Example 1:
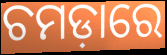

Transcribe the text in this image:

ଚମଡ଼ାରେ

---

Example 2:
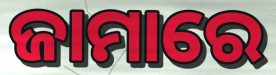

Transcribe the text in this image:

ଜାମାରେ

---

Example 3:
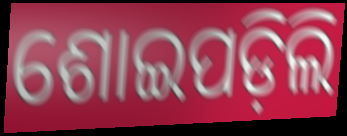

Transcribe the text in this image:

ଶୋଇପଡ଼ିଲି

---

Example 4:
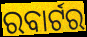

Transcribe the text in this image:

ରବାର୍ଟର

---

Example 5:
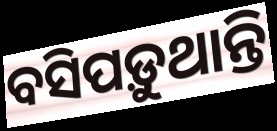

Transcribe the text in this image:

ବସିପଡ଼ୁଥାନ୍ତି